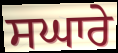
ਸਘਾਰੇ